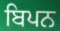
ਬਿਪਨ